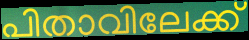
പിതാവിലേക്ക്